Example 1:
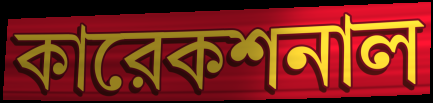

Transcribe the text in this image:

কারেকশনাল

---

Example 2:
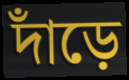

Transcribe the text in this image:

দাঁড়ে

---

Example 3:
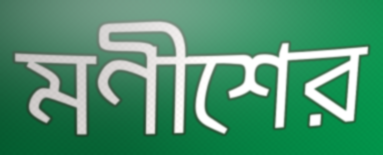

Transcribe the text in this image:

মণীশের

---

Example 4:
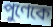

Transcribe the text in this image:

পুণেকে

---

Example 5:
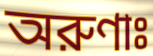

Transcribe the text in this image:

অরুণাঃ